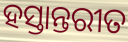
ହସ୍ତାନ୍ତରୀତ